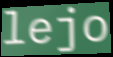
lejo